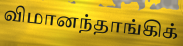
விமானந்தாங்கிக்